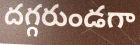
దగ్గరుండగా